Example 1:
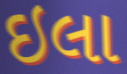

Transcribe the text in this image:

ઇલા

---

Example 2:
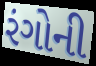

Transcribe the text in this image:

રંગોની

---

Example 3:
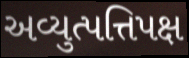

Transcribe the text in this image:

અવ્યુત્પત્તિપક્ષ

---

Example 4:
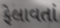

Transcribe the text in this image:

ફેલાવતાં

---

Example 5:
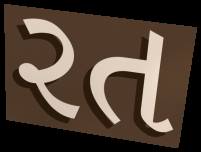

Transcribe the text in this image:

રત